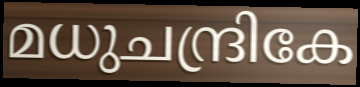
മധുചന്ദ്രികേ